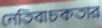
নেতিবাচকতার